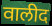
वालीद